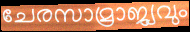
ചേരസാമ്രാജ്യവും